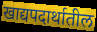
खाद्यपदार्थातील